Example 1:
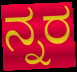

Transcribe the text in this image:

ನ್ನರ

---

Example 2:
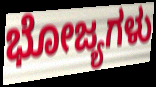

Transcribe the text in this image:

ಭೋಜ್ಯಗಳು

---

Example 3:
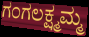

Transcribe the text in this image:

ಗಂಗಲಕ್ಷ್ಮಮ್ಮ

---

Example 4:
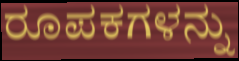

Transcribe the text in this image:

ರೂಪಕಗಳನ್ನು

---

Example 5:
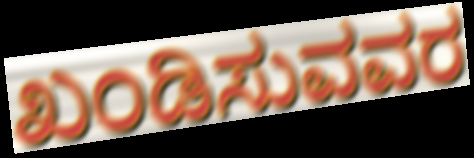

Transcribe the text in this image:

ಖಂಡಿಸುವವರ